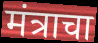
मंत्राचा